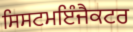
ਸਿਸਟਮਇੰਜੈਕਟਰ